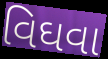
વિઘવા